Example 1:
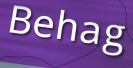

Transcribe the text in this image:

Behag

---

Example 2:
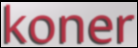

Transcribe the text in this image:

koner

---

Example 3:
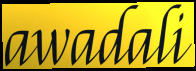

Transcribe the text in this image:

awadali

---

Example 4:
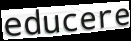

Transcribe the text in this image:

educere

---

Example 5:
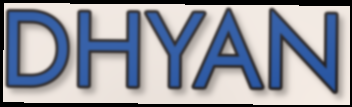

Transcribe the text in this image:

DHYAN